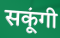
सकूंगी